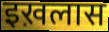
इख़लास